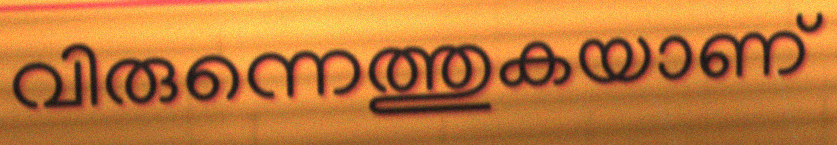
വിരുന്നെത്തുകയാണ്